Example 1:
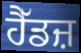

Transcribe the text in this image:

ਹੈੱਡਜ਼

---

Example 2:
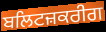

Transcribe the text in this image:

ਬਲਿਟਜ਼ਕਰੀਗ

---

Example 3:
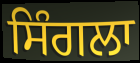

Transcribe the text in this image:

ਸਿੰਗਲਾ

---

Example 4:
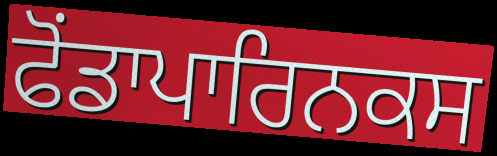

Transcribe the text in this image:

ਫੋਂਡਾਪਾਰਿਨਕਸ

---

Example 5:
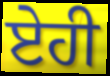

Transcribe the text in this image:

ਏਹੀ